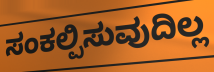
ಸಂಕಲ್ಪಿಸುವುದಿಲ್ಲ